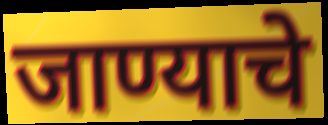
जाण्याचे